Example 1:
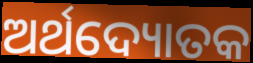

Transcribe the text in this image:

ଅର୍ଥଦ୍ୟୋତକ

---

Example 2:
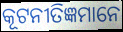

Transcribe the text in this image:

କୂଟନୀତିଜ୍ଞମାନେ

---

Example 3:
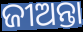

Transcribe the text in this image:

ଜୀଅନ୍ତା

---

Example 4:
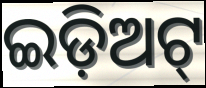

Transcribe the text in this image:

ଇଡ଼ିଅଟ୍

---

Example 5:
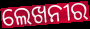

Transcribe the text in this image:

ଲେଖନୀର